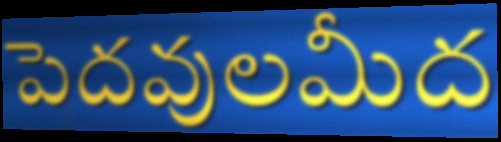
పెదవులమీద